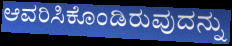
ಆವರಿಸಿಕೊಂಡಿರುವುದನ್ನು